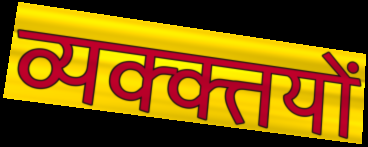
व्यक्क्तयों